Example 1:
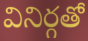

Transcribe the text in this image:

వినిర్గతో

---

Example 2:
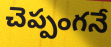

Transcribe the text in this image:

చెప్పంగనే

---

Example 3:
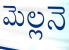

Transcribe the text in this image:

మెల్లనె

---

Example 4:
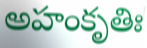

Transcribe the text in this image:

అహంకృతిః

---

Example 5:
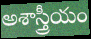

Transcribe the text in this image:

అశాస్త్రీయం